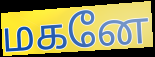
மகனே